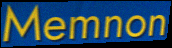
Memnon